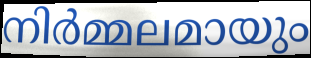
നിർമ്മലമായും